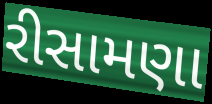
રીસામણા